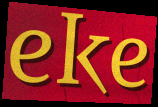
eke